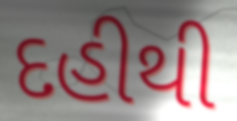
દહીથી